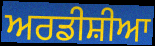
ਅਰਡੀਸ਼ੀਆ